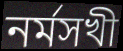
নর্মসখী